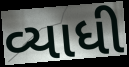
વ્યાધી